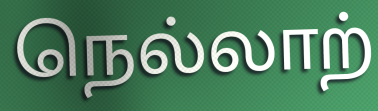
நெல்லாற்